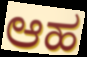
ಆಹ